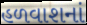
હળવાશનાં